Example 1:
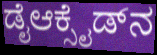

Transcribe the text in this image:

ಡೈಆಕ್ಸೈಡ್‌ನ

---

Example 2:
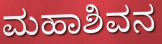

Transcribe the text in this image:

ಮಹಾಶಿವನ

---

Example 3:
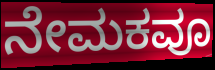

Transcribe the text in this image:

ನೇಮಕವೂ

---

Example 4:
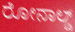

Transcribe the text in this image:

ರೋನಾಲ್ಡ್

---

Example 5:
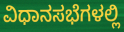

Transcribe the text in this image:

ವಿಧಾನಸಭೆಗಳಲ್ಲಿ